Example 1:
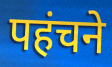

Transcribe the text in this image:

पहंचने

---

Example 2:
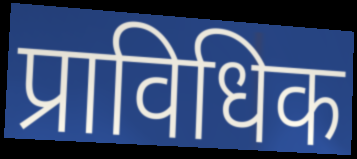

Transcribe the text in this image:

प्राविधिक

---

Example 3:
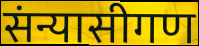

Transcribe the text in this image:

संन्यासीगण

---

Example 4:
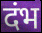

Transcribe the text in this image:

दंभ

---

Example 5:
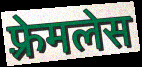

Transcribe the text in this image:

फ़्रेमलेस